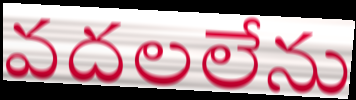
వదలలేను